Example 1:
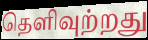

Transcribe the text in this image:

தெளிவுற்றது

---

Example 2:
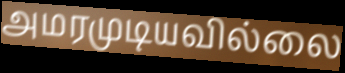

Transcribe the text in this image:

அமரமுடியவில்லை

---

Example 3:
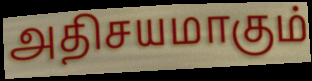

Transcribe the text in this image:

அதிசயமாகும்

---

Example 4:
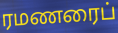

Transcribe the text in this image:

ரமணரைப்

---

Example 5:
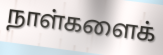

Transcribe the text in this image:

நாள்களைக்